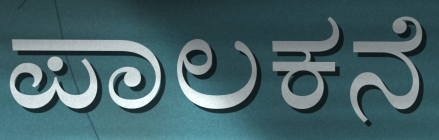
ಪಾಲಕನೆ